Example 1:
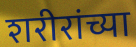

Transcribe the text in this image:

शरीरांच्या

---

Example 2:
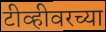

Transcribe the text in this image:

टीव्हीवरच्या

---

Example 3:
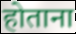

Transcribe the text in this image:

होताना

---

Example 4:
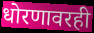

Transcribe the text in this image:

धोरणावरही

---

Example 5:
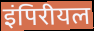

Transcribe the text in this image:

इंपिरीयल